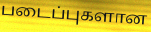
படைப்புகளான